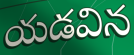
యడవిన